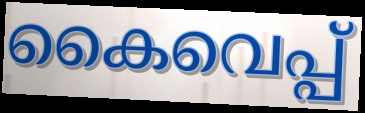
കൈവെപ്പ്